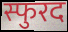
स्फुरद